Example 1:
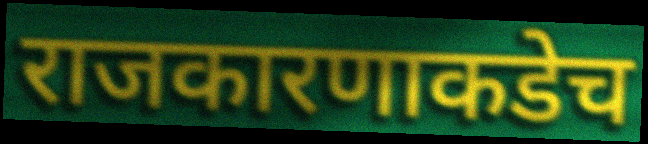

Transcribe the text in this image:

राजकारणाकडेच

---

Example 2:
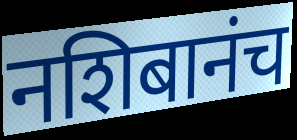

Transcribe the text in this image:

नशिबानंच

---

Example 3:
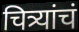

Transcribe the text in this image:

चित्र्यांचं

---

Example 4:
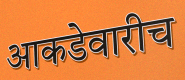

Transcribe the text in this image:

आकडेवारीच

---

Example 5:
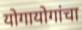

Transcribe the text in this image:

योगायोगांचा